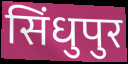
सिंधुपुर